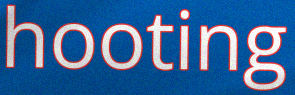
hooting